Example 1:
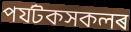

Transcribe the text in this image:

পৰ্যটকসকলৰ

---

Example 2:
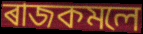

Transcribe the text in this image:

ৰাজকমলে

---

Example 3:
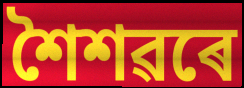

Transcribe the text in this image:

শৈশৱৰে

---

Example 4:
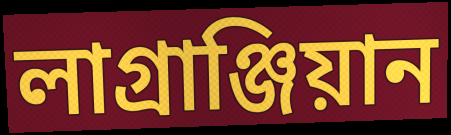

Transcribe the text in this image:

লাগ্ৰাঞ্জিয়ান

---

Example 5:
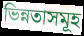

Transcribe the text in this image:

ভিন্নতাসমূহ